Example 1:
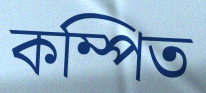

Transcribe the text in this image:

কম্পিত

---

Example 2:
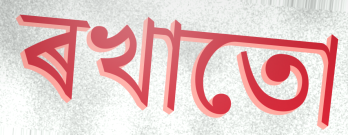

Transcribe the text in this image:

ৰখাতো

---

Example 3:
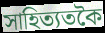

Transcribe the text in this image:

সাহিত্যতকৈ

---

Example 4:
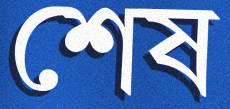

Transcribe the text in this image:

শেষ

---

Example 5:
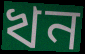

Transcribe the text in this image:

খন